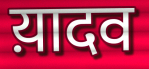
य़ादव